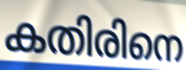
കതിരിനെ